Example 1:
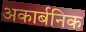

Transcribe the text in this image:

अकार्बनिक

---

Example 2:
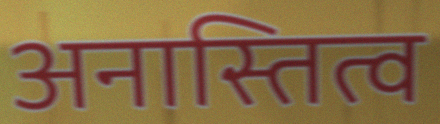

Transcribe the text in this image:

अनास्तित्व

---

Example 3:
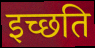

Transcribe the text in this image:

इच्छति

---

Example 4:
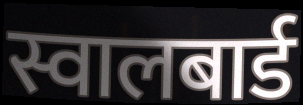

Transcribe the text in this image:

स्वालबार्ड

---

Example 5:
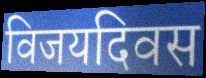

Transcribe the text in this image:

विजयदिवस